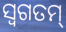
ସ୍ୱଗତମ୍